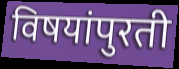
विषयांपुरती